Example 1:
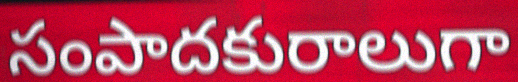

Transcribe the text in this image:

సంపాదకురాలుగా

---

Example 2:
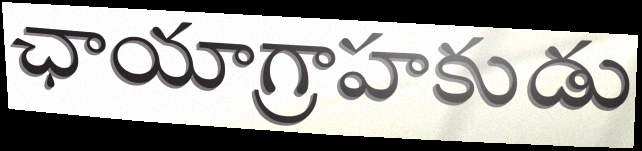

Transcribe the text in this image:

ఛాయాగ్రాహకుడు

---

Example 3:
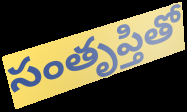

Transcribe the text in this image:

సంతృప్తితో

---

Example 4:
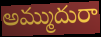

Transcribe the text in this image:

అమ్ముదురా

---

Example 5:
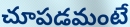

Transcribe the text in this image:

చూపడమంటే